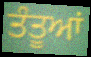
ਤੰਤੂਆਂ